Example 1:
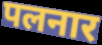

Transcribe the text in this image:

पलनार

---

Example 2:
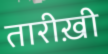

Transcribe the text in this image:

तारीख़ी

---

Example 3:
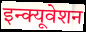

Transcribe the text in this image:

इन्क्यूवेशन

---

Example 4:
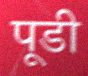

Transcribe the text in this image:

पूडी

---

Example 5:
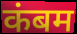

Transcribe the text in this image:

कंबम